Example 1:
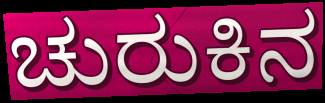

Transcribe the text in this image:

ಚುರುಕಿನ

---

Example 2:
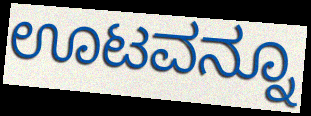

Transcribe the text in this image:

ಊಟವನ್ನೂ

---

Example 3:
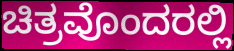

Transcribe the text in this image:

ಚಿತ್ರವೊಂದರಲ್ಲಿ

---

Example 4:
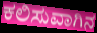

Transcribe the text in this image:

ಕಲಿಸುವಾಗಿನ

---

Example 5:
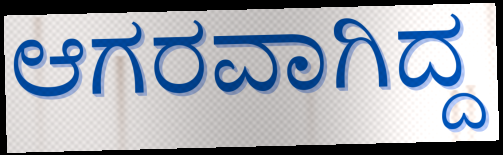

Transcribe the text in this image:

ಆಗರವಾಗಿದ್ದ